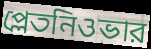
প্লেতনিওভার